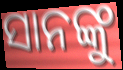
ସାନଙ୍କୁ